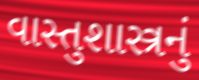
વાસ્તુશાસ્ત્રનું